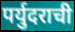
पर्युदराची